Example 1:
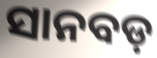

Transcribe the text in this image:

ସାନବଡ଼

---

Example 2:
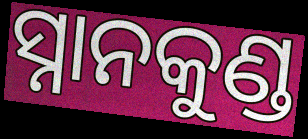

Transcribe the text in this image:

ସ୍ନାନକୁଣ୍ଡ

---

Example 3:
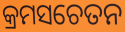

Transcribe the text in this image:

କ୍ରମସଚେତନ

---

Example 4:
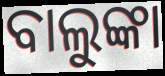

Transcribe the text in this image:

ବାଲୁଙ୍କା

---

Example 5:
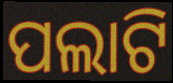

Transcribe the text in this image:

ପଲାଟି